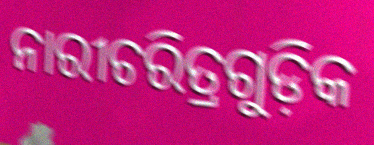
ନାରୀଚରିତ୍ରଗୁଡ଼ିକ